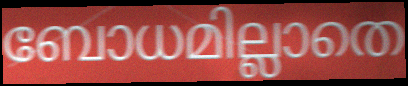
ബോധമില്ലാതെ